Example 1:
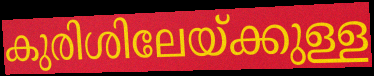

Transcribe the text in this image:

കുരിശിലേയ്ക്കുള്ള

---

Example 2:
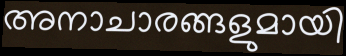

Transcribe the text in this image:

അനാചാരങ്ങളുമായി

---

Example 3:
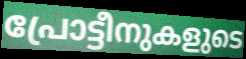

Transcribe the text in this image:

പ്രോട്ടീനുകളുടെ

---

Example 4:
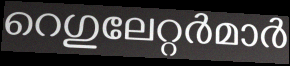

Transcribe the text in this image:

റെഗുലേറ്റർമാർ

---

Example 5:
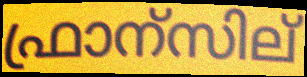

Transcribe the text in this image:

ഫ്രാന്സില്